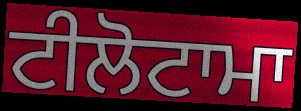
ਟੀਲੋਟਾਮਾ